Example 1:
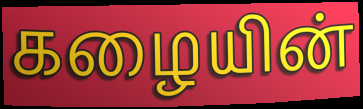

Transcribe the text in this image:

கழையின்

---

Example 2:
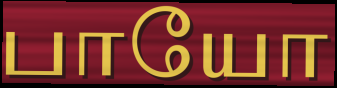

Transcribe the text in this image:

பாயோ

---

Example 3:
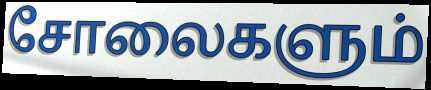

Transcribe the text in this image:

சோலைகளும்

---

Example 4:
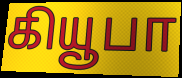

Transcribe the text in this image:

கியூபா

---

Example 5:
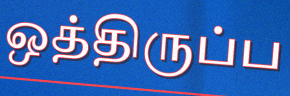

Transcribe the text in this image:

ஒத்திருப்ப